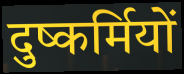
दुष्कर्मियों